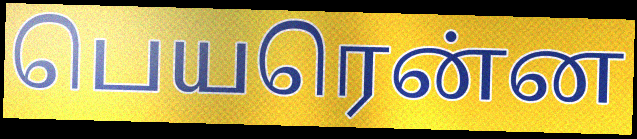
பெயரென்ன